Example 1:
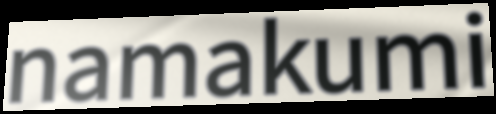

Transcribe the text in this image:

namakumi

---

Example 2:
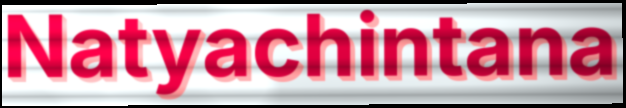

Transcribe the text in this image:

Natyachintana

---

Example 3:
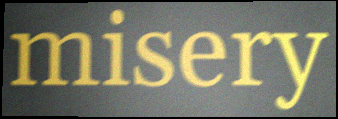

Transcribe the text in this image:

misery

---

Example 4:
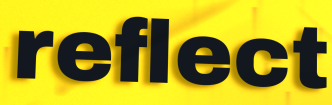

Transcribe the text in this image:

reflect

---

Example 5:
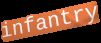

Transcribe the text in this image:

infantry